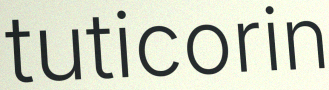
tuticorin